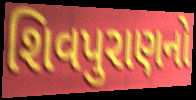
શિવપુરાણનો